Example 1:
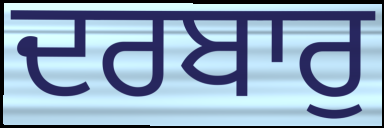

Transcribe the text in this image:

ਦਰਬਾਰੁ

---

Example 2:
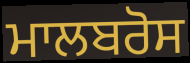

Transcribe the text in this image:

ਮਾਲਬਰੋਸ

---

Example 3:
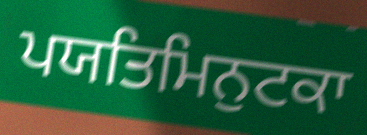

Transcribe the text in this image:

ਪਯਤਿਮਿਨੁਟਕਾ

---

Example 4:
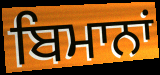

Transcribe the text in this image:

ਬਿਮਾਨਾਂ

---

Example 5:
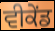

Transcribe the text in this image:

ਵੀਕੇਂਡ